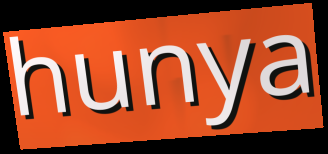
hunya